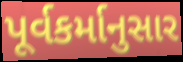
પૂર્વકર્માનુસાર